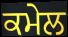
ਕਮੇਲ